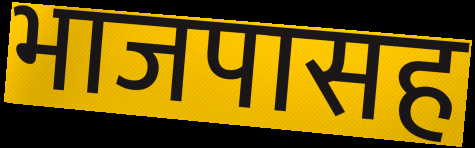
भाजपासह